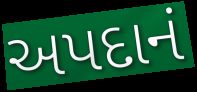
અપદાનં